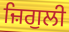
ਜ਼ਿਗੁਲੀ